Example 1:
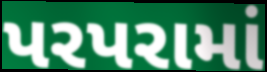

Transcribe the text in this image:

પરપરામાં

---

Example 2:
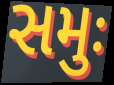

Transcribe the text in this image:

સમુઃ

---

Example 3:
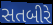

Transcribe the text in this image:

સતબીરે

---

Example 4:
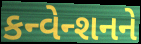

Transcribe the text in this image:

કન્વેન્શનને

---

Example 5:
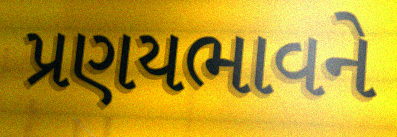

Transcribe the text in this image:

પ્રણયભાવને